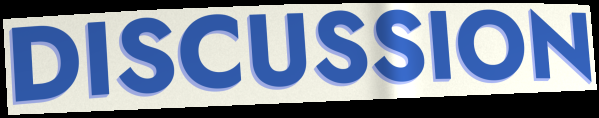
DISCUSSION